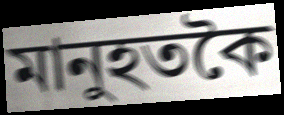
মানুহতকৈ